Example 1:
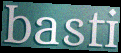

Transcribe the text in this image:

basti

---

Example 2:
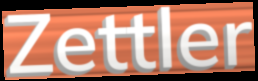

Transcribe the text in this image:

Zettler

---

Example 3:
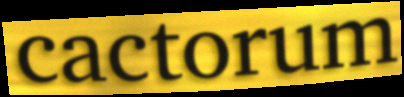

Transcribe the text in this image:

cactorum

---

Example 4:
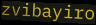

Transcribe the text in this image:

zvibayiro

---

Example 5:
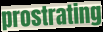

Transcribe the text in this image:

prostrating